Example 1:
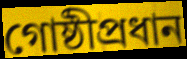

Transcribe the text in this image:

গোষ্ঠীপ্রধান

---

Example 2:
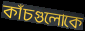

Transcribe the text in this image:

কাঁচগুলোকে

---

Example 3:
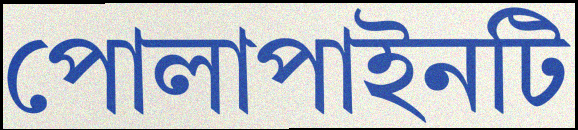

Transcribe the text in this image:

পোলাপাইনটি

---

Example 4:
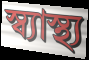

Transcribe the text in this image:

স্ব্যাস্থ্য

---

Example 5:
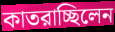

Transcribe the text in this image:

কাতরাচ্ছিলেন